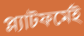
প্ল্যাটফর্মেই